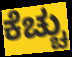
ಕೆಚ್ಚು